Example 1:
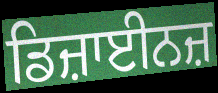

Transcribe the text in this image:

ਡਿਜ਼ਾਈਨਜ਼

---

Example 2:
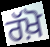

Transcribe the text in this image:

ਰੱਖ਼ੋ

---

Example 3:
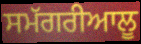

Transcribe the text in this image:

ਸਮੱਗਰੀਆਲੂ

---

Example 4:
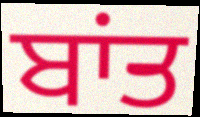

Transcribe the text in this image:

ਬਾਂਤ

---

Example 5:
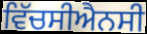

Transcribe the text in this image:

ਵਿੱਚਸੀਐਨਸੀ